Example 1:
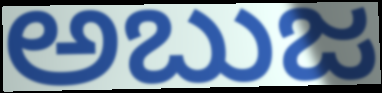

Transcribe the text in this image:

ಅಬುಜ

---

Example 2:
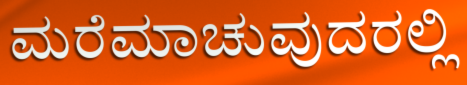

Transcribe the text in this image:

ಮರೆಮಾಚುವುದರಲ್ಲಿ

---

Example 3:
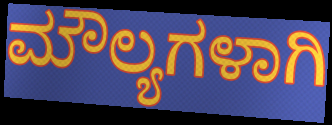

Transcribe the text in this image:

ಮೌಲ್ಯಗಳಾಗಿ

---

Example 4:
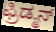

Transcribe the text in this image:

ಫ್ರಿಡ್ಮನ್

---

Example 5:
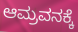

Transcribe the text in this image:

ಆಮ್ರವನಕ್ಕೆ